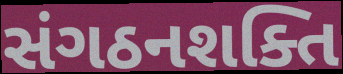
સંગઠનશક્તિ